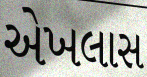
એખલાસ